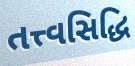
તત્ત્વસિદ્ધિ